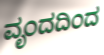
ವೃಂದದಿಂದ